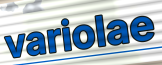
variolae